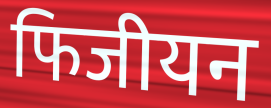
फिजीयन